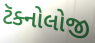
ટૅક્નોલોજી